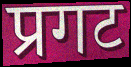
प्रगट